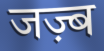
जज़्ब